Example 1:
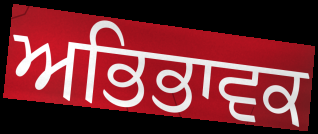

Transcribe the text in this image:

ਅਭਿਭਾਵਕ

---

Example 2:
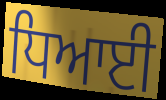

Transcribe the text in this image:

ਧਿਆਈ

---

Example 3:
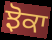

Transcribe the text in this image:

ਝੋਕਾ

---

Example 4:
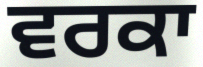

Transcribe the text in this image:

ਵਰਕਾ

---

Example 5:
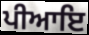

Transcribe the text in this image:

ਪੀਆਇ